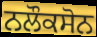
ਨਲੌਕਸੋਨ